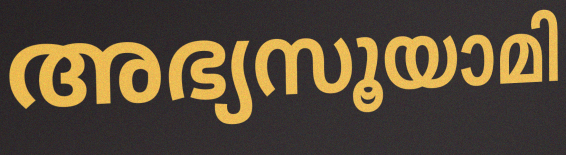
അഭ്യസൂയാമി